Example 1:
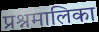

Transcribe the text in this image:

प्रश्नमालिका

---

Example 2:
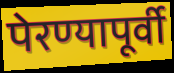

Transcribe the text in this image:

पेरण्यापूर्वी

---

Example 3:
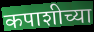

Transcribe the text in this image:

कपाशीच्या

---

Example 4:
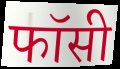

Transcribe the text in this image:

फॉसी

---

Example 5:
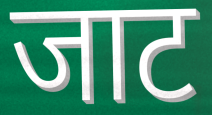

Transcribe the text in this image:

जाट